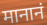
मानानं